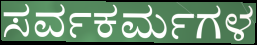
ಸರ್ವಕರ್ಮಗಳ